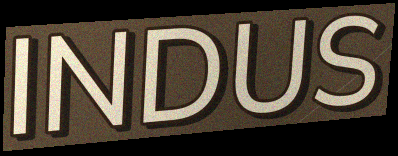
INDUS